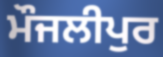
ਮੌਜਲੀਪੁਰ